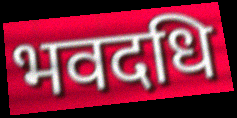
भवदधि